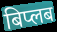
बिप्लब